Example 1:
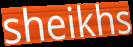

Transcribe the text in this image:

sheikhs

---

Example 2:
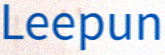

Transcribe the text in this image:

Leepun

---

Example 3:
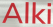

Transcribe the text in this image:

Alki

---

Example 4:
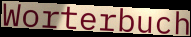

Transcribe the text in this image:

Worterbuch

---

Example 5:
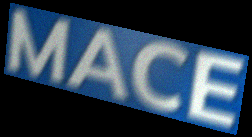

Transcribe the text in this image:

MACE